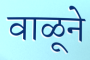
वाळूने